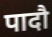
पादौ